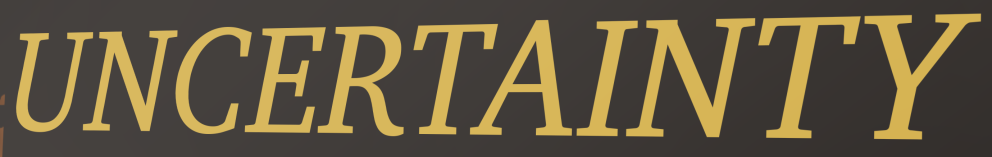
UNCERTAINTY